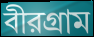
বীরগ্রাম